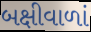
બક્ષીવાળાં